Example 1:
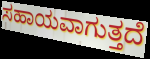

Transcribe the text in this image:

ಸಹಾಯವಾಗುತ್ತದೆ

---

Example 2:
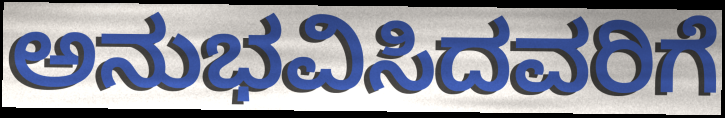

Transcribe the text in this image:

ಅನುಭವಿಸಿದವರಿಗೆ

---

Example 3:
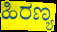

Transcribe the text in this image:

ಹಿರಣ್ಯ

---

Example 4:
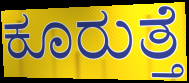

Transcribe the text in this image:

ಕೂರುತ್ತೆ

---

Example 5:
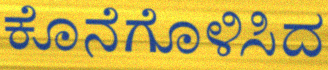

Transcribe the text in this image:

ಕೊನೆಗೊಳಿಸಿದ